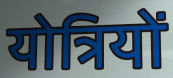
योत्रियों